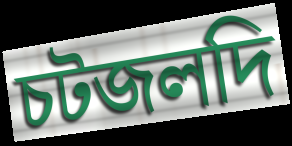
চটজলদি